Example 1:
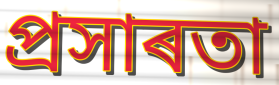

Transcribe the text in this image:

প্ৰসাৰতা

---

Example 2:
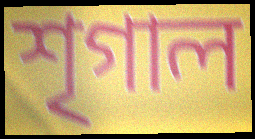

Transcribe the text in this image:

শৃগাল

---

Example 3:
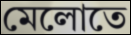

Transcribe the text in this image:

মেলোতে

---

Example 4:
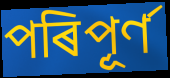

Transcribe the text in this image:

পৰিপূৰ্ণ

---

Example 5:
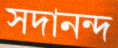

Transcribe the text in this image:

সদানন্দ